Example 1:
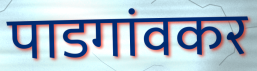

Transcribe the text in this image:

पाडगांवकर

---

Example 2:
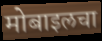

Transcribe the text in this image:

मोबाइलचा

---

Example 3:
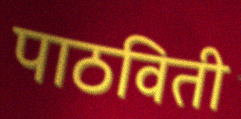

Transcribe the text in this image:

पाठविती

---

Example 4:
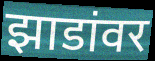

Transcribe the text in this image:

झाडांवर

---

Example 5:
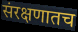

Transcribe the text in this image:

संरक्षणातच